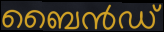
ബൈൻഡ്